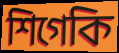
শিগেকি